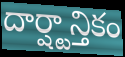
దార్ష్టాన్తికం